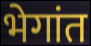
भेगांत